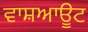
ਵਾਸ਼ਆਊਟ